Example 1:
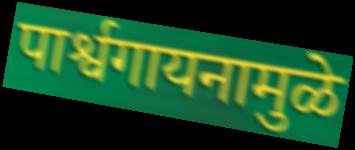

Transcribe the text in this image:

पार्श्वगायनामुळे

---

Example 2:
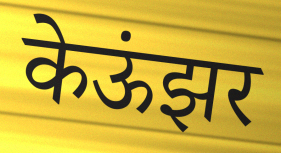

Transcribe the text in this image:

केऊंझर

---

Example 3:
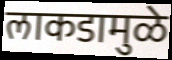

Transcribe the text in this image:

लाकडामुळे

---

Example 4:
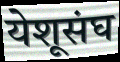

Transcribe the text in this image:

येशूसंघ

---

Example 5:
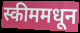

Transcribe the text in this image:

स्कीममधून